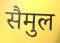
सैमुल